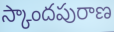
స్కాందపురాణ